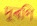
দূৰণি